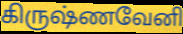
கிருஷ்ணவேனி